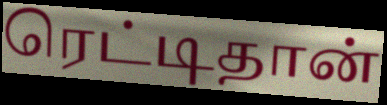
ரெட்டிதான்